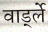
वार्ड्ले